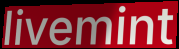
livemint